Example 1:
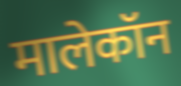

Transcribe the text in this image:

मालेकॉन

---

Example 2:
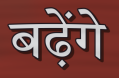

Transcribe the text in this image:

बढ़ेंगे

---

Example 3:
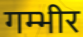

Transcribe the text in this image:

गम्भीर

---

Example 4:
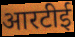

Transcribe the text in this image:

आरटीई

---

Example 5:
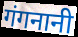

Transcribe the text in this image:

गंगनानी